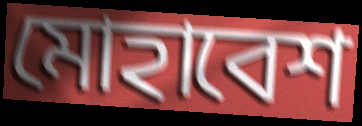
মোহাবেশ